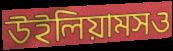
উইলিয়ামসও